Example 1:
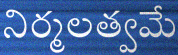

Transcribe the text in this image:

నిర్మలత్వమే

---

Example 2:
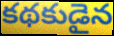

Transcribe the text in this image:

కథకుడైన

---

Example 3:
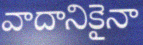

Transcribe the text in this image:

వాదానికైనా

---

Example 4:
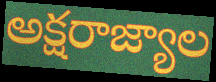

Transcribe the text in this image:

అక్షరాజ్యాల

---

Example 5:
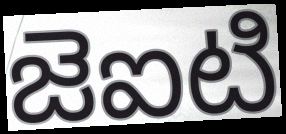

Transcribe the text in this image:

జెఐటి